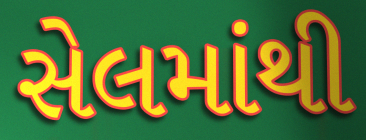
સેલમાંથી